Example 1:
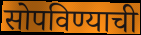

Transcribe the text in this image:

सोपविण्याची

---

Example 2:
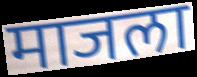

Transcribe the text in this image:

माजला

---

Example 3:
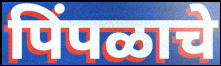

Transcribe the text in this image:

पिंपळाचे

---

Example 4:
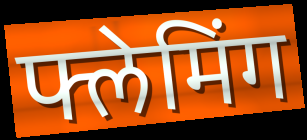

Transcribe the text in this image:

फ्लेमिंग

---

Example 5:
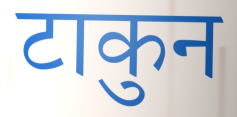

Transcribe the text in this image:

टाकुन